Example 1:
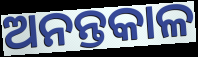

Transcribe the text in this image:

ଅନନ୍ତକାଳ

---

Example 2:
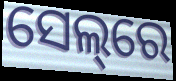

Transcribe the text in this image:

ସେଲ୍‌ରେ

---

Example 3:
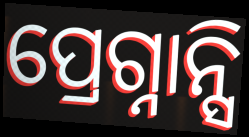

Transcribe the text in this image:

ପ୍ରେଗ୍ନାନ୍ସି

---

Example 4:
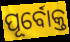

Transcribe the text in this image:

ପୂର୍ବୋକ୍ତ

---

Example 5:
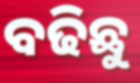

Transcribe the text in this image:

ବଢିଛୁ